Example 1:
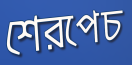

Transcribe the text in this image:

শেরপেচ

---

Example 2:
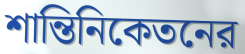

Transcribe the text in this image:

শান্তিনিকেতনের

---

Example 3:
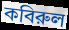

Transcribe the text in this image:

কবিরুল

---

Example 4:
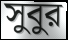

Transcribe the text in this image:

সুবুর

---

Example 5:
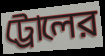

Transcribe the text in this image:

ট্রোলের